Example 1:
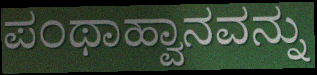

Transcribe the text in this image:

ಪಂಥಾಹ್ವಾನವನ್ನು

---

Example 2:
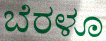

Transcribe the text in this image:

ಬೆರಳೂ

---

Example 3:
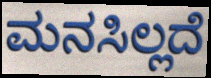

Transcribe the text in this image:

ಮನಸಿಲ್ಲದೆ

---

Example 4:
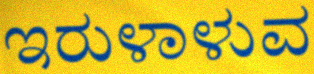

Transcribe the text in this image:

ಇರುಳಾಳುವ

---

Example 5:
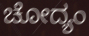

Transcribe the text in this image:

ಚೋದ್ಯಂ